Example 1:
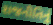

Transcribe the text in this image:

રાજનીતિનું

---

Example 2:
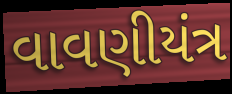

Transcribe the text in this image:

વાવણીયંત્ર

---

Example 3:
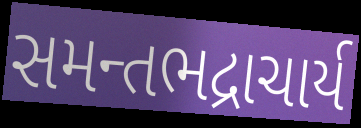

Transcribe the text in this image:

સમન્તભદ્રાચાર્ય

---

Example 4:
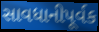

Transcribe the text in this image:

સાવધાનીપૂર્વક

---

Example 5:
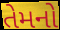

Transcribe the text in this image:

તેમનો